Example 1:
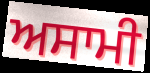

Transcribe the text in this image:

ਅਸਾਮੀ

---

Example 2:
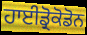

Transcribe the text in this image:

ਹਾਈਡ੍ਰੋਕੋਡੋਨ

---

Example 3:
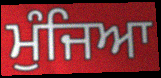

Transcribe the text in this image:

ਮੁੰਜਿਆ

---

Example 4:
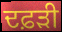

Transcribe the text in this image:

ਦਫ਼ੜੀ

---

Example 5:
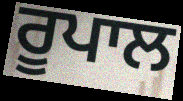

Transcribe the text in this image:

ਰੂਪਾਲ